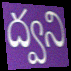
ద్వని